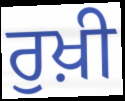
ਰੁਖ਼ੀ